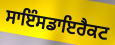
ਸਾਇੰਸਡਾਇਰੈਕਟ